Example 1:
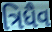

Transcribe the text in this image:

ત્રિધૈવ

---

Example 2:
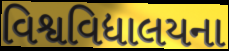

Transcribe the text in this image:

વિશ્વવિદ્યાલયના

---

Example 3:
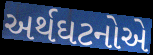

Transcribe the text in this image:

અર્થઘટનોએ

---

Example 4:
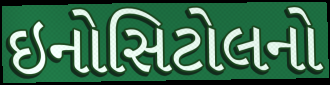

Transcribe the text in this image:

ઇનોસિટોલનો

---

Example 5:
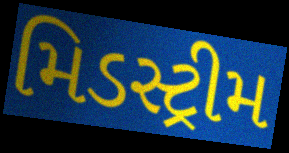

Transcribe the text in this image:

મિડસ્ટ્રીમ